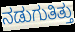
ನಡುಗುತಿತ್ತು